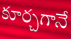
కూర్చగానే